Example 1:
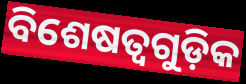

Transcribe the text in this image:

ବିଶେଷତ୍ୱଗୁଡ଼ିକ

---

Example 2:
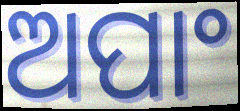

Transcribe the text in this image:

ଅପାଂ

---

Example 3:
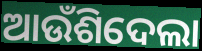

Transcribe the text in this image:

ଆଉଁଶିଦେଲା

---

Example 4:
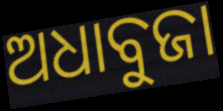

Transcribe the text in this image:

ଅଧାବୁଜା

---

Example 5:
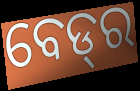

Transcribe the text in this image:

ବେଡ୍‍ର